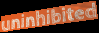
uninhibited